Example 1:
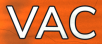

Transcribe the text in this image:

VAC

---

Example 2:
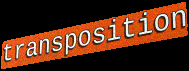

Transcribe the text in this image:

transposition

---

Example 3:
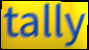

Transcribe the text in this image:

tally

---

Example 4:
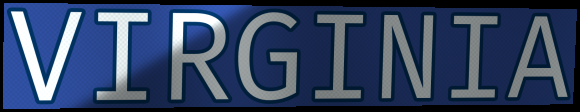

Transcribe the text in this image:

VIRGINIA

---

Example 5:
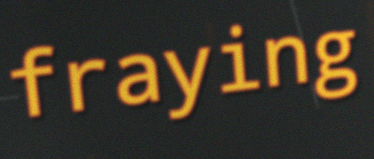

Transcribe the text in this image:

fraying